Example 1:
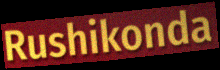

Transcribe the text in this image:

Rushikonda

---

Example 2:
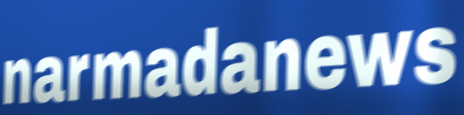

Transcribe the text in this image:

narmadanews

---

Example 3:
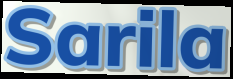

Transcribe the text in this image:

Sarila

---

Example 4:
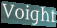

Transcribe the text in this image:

Voight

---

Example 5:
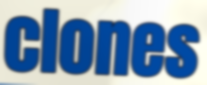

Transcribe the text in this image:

clones